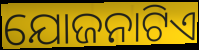
ଯୋଜନାଟିଏ